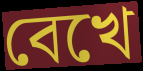
বেখে